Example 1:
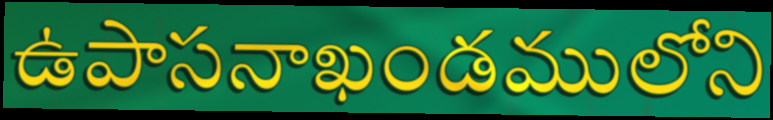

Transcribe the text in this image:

ఉపాసనాఖండములోని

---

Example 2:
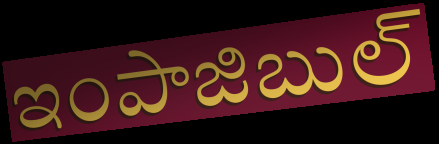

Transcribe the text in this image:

ఇంపాజిబుల్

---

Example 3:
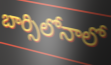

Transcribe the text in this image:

బార్సిలోనాలో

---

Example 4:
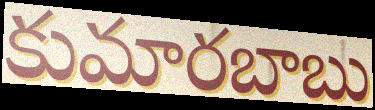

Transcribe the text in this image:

కుమారబాబు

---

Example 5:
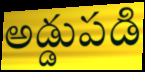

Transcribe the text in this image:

అడ్డుపడి